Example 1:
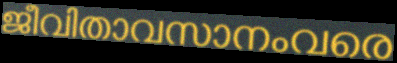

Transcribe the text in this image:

ജീവിതാവസാനംവരെ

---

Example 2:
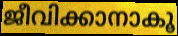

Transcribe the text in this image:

ജീവിക്കാനാകൂ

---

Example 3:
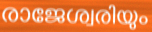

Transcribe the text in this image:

രാജേശ്വരിയും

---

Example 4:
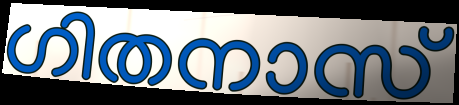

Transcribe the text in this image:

ഗിതനാസ്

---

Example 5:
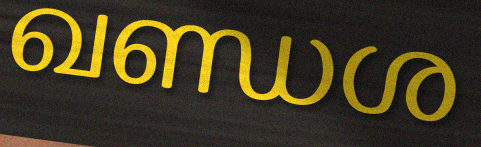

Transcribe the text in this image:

ഖണ്ഡശ